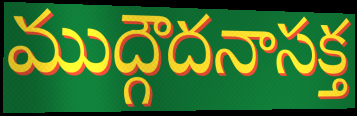
ముద్గౌదనాసక్త